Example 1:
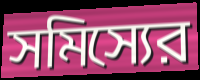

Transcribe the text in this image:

সমিস্যের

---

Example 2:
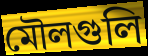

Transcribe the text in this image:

মৌলগুলি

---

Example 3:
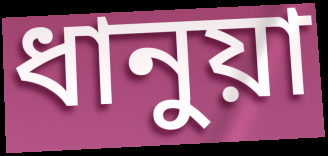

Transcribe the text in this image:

ধানুয়া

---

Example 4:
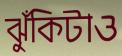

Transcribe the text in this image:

ঝুঁকিটাও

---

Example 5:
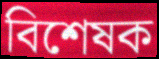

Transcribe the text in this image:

বিশেষক